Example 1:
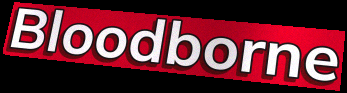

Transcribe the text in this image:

Bloodborne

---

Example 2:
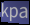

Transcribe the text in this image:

kpa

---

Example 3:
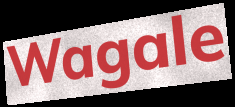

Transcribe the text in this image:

Wagale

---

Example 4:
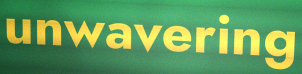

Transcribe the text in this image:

unwavering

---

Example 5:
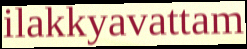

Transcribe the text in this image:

ilakkyavattam